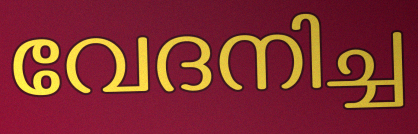
വേദനിച്ച